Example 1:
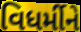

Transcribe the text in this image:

વિધર્મીને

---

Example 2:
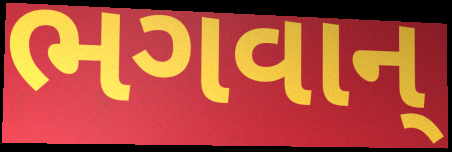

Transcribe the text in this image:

ભગવાન્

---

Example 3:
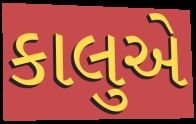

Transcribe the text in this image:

કાલુએ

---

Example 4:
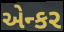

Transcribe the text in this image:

એન્કર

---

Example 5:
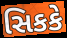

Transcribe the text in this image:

સિકકે